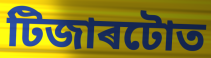
টিজাৰটোত